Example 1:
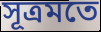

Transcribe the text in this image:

সূত্রমতে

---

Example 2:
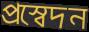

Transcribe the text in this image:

প্রস্বেদন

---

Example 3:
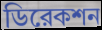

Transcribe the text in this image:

ডিরেকশন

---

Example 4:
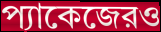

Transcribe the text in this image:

প্যাকেজেরও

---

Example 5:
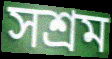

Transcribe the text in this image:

সশ্রম